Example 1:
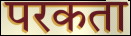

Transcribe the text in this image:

परकता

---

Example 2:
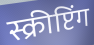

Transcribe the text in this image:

स्क्रीप्टिंग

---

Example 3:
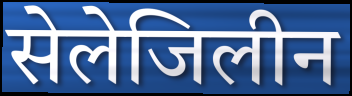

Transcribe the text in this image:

सेलेजिलीन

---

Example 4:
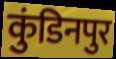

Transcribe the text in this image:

कुंडिनपुर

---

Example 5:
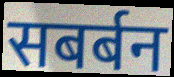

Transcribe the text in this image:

सबर्बन